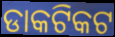
ଡାକଟିକଟ